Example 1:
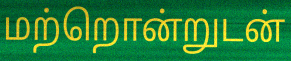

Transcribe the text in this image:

மற்றொன்றுடன்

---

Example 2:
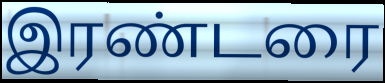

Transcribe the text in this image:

இரண்டரை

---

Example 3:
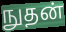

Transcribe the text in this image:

நுதன்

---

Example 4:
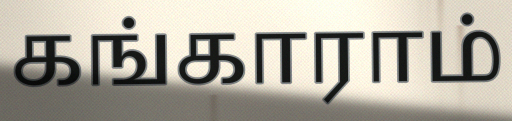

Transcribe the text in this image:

கங்காராம்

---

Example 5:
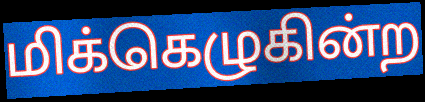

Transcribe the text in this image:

மிக்கெழுகின்ற